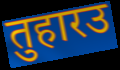
तुहारउ